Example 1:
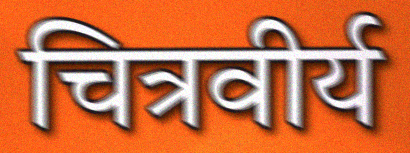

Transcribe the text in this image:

चित्रवीर्य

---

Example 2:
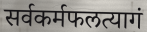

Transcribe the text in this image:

सर्वकर्मफलत्यागं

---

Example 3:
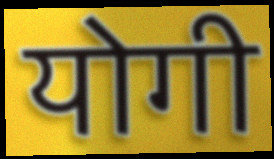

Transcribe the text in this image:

योगी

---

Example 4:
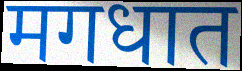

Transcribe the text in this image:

मगधात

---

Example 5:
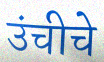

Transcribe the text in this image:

उंचीचे